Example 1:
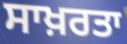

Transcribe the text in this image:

ਸਾਖ਼ਰਤਾ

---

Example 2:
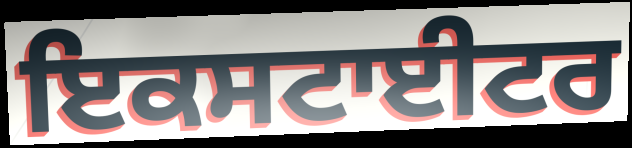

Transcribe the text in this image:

ਇਕਸਟਾਈਟਰ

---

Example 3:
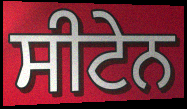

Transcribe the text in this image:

ਸੀਟੇਨ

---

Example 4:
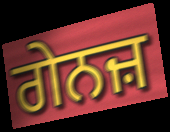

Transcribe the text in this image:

ਗੇਨਜ਼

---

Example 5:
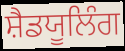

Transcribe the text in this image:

ਸ਼ੈਡਯੂਲਿੰਗ